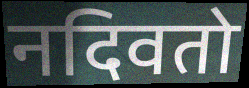
नदिवतो